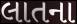
લાતના